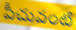
పీచువంటి